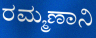
ರಮ್ಮಣಾನಿ